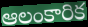
ఆలంకారిక